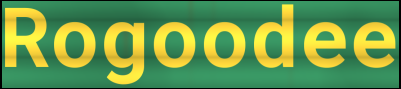
Rogoodee